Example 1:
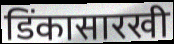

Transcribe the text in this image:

डिंकासारखी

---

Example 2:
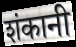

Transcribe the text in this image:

शंकानी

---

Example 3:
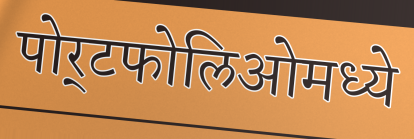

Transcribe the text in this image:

पोर्टफोलिओमध्ये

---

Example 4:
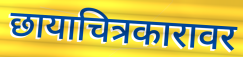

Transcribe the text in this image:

छायाचित्रकारावर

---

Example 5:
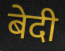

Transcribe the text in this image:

बेदी